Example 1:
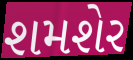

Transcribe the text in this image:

શમશેર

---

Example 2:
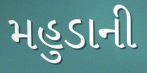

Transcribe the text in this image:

મહુડાની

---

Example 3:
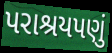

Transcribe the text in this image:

પરાશ્રયપણું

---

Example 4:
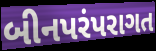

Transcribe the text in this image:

બીનપરંપરાગત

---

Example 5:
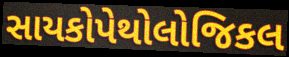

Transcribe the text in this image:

સાયકોપેથોલોજિકલ